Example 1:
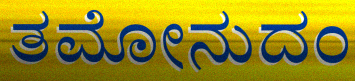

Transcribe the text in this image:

ತಮೋನುದಂ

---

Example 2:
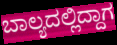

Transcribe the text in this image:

ಬಾಲ್ಯದಲ್ಲಿದ್ದಾಗ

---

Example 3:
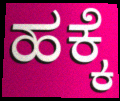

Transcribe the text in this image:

ಹಕ್ಕೆ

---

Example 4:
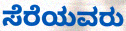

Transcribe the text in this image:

ಸೆರೆಯವರು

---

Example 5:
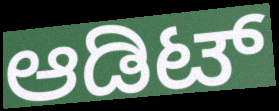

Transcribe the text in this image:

ಆಡಿಟ್